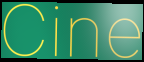
Cine